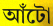
আঁটো